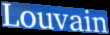
Louvain